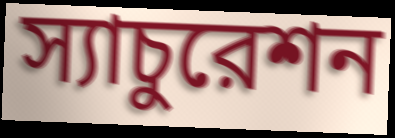
স্যাচুরেশন